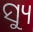
ସ୍ୟୁ